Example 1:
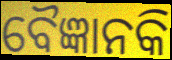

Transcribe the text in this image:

ବୈଜ୍ଞାନକି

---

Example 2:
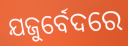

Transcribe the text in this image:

ଯଜୁର୍ବେଦରେ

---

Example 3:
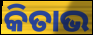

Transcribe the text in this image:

କିତାଭ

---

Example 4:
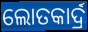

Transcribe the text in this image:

ଲୋତକାର୍ଦ୍ର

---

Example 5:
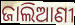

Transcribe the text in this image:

ଜାଲିଆଣୀ